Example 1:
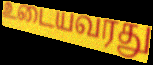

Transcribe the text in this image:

உடையவரது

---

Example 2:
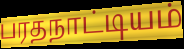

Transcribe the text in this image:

பரதநாட்டியம்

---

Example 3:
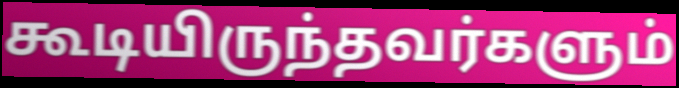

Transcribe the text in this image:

கூடியிருந்தவர்களும்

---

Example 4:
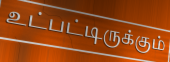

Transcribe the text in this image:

உட்பட்டிருக்கும்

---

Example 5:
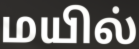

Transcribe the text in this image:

மயில்